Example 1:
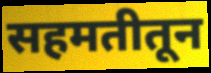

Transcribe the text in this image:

सहमतीतून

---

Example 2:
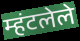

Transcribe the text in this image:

म्हंटलेले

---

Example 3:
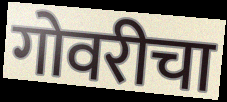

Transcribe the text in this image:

गोवरीचा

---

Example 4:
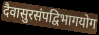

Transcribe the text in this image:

दैवासुरसंपद्विभागयोग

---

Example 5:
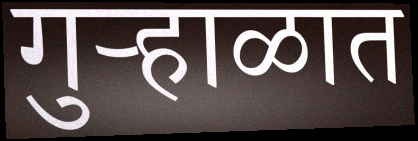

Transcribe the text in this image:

गुऱ्हाळात